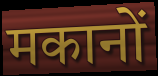
मकानों